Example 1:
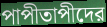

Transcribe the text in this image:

পাপীতাপীদের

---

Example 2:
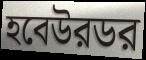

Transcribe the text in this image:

হবেউরডর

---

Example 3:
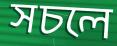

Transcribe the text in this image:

সচলে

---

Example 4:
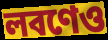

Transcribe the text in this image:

লবণেও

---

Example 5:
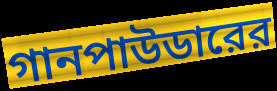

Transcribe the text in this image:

গানপাউডারের